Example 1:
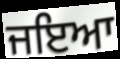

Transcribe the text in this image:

ਜਇਆ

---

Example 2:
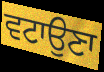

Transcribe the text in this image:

ਵਟਾਉਣਾ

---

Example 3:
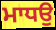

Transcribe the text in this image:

ਮਾਧਉ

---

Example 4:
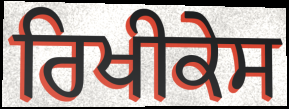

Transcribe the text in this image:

ਰਿਖੀਕੇਸ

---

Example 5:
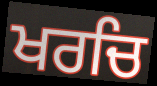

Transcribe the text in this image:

ਖਰਚਿ